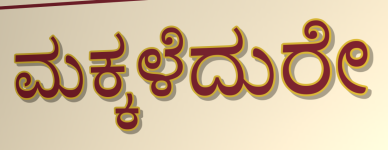
ಮಕ್ಕಳೆದುರೇ